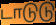
டாடுடு